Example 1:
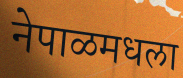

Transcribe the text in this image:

नेपाळमधला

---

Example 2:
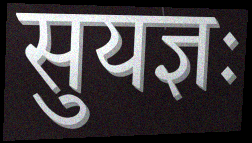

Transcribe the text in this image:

सुयज्ञः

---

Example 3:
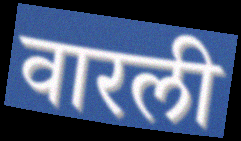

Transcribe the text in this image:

वारली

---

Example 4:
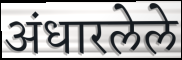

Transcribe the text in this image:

अंधारलेले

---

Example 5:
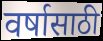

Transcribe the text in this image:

वर्षासाठी